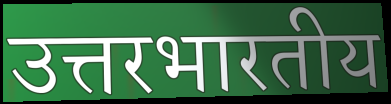
उत्तरभारतीय